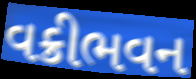
વક્રીભવન